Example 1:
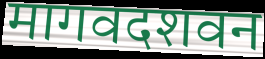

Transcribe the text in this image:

मागवदशवन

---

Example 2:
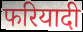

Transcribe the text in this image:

फरियादी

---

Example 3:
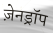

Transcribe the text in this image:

ज़ेनड्रॉप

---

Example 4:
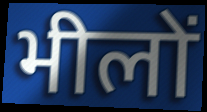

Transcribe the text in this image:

भीलों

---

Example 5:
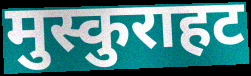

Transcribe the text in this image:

मुस्कुराहट